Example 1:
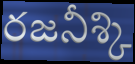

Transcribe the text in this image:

రజనీశ్కి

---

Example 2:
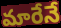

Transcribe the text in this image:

మారేనే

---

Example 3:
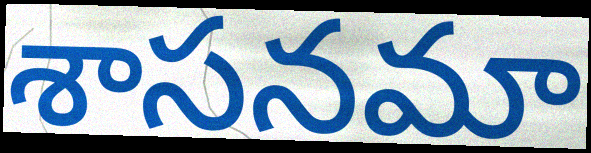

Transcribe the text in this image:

శాసనమా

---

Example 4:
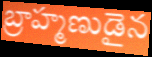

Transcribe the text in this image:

బ్రాహ్మణుడైన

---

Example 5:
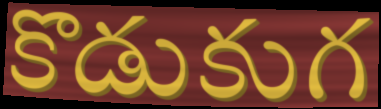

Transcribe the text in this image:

కొడుకుగ